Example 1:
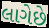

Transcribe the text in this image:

લાગેછે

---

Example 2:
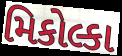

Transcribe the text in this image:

મિકોલ્કા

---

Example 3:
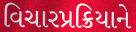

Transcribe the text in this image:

વિચારપ્રક્રિયાને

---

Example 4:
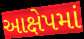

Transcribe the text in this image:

આક્ષેપમાં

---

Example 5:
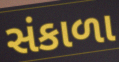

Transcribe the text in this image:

સંકાળા